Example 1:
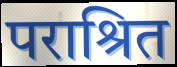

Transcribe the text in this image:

पराश्रित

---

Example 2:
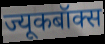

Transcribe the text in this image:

ज्यूकबॉक्स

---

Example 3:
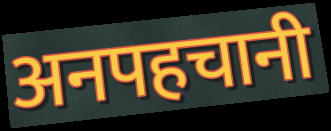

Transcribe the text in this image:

अनपहचानी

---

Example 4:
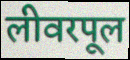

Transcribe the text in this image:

लीवरपूल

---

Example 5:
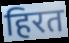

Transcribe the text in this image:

हिरत